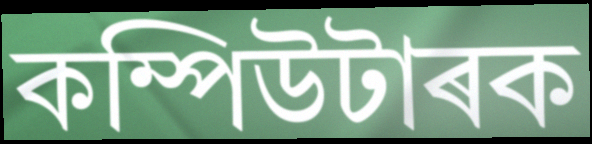
কম্পিউটাৰক